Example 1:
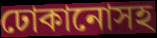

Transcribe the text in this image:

ঢোকানোসহ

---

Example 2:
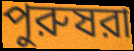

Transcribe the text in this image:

পুরুষরা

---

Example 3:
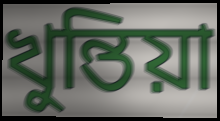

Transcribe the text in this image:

খুন্তিয়া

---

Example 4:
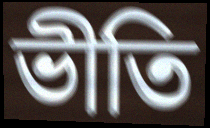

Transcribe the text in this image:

ভীতি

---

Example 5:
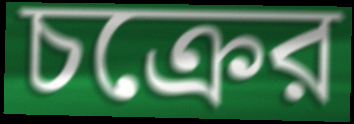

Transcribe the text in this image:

চক্রের